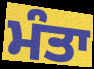
ਮੰਤਾ